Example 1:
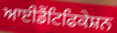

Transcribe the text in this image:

ਆਈਡੈਂਟਿਫਿਕੇਸ਼ਨ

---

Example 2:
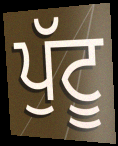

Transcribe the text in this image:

ਪੁੱਟੂ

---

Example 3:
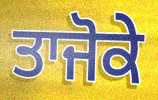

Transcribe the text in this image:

ਤਾਜੋਕੇ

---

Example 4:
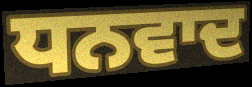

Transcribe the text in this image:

ਧਨਵਾਦ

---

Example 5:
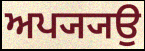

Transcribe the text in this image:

ਅਪ੍ਯ੍ਯਉ